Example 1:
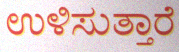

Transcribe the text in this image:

ಉಳಿಸುತ್ತಾರೆ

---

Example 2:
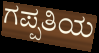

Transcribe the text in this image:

ಗಪ್ಪತಿಯ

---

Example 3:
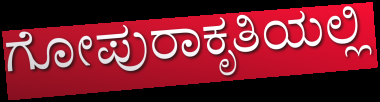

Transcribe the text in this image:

ಗೋಪುರಾಕೃತಿಯಲ್ಲಿ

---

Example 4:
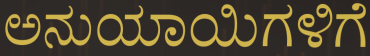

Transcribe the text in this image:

ಅನುಯಾಯಿಗಳಿಗೆ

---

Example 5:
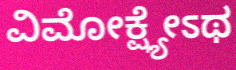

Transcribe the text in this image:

ವಿಮೋಕ್ಷ್ಯೇಽಥ